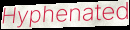
Hyphenated